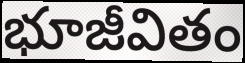
భూజీవితం